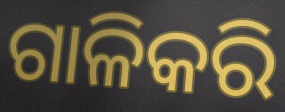
ଗାଳିକରି